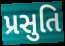
પ્રસુતિ